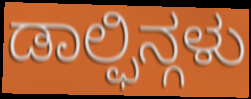
ಡಾಲ್ಫಿನ್ಗಳು